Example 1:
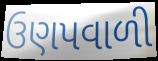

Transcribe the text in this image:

ઉણપવાળી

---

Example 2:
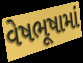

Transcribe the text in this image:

વેષભૂષામાં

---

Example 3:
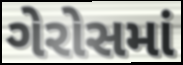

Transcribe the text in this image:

ગેરોસમાં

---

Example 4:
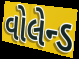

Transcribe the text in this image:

વોલેન્ડ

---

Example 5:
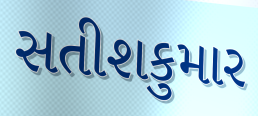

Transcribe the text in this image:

સતીશકુમાર